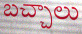
బచ్చాలు